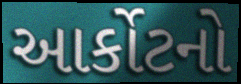
આર્કોટનો